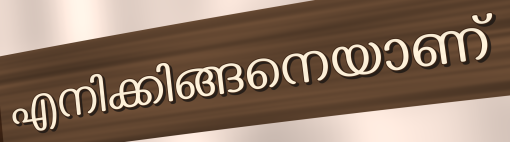
എനിക്കിങ്ങനെയാണ്